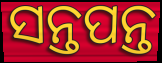
ସନ୍ତପନ୍ତ